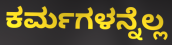
ಕರ್ಮಗಳನ್ನೆಲ್ಲ